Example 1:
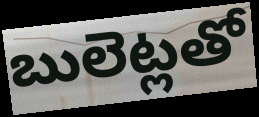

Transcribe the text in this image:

బులెట్లతో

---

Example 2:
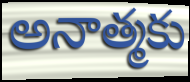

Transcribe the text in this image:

అనాత్మకు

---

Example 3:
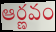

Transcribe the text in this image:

ఆర్ణవం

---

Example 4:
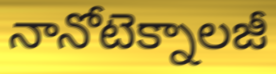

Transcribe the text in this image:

నానోటెక్నాలజీ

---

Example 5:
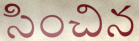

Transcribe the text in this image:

సించిన